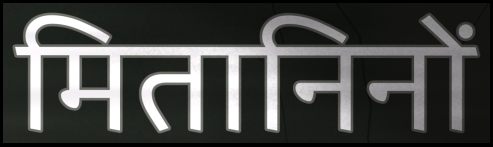
मितानिनों